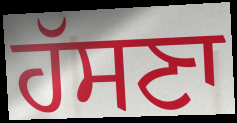
ਹੱਸਣਾ